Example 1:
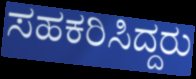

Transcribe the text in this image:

ಸಹಕರಿಸಿದ್ದರು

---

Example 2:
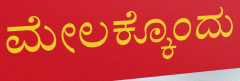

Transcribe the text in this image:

ಮೇಲಕ್ಕೊಂದು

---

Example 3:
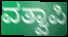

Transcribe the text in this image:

ವತ್ವಾಪಿ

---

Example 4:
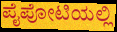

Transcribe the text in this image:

ಪೈಪೋಟಿಯಲ್ಲಿ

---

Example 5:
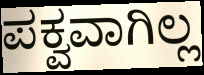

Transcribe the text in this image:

ಪಕ್ವವಾಗಿಲ್ಲ